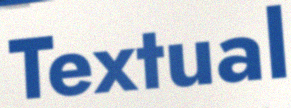
Textual